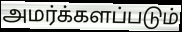
அமர்க்களப்படும்